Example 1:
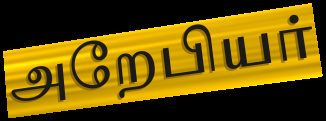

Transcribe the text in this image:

அறேபியர்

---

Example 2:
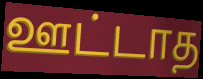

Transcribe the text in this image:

ஊட்டாத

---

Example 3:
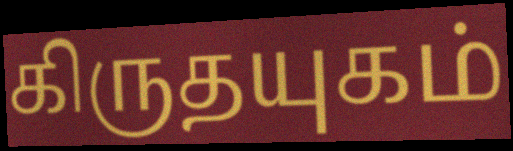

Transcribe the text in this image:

கிருதயுகம்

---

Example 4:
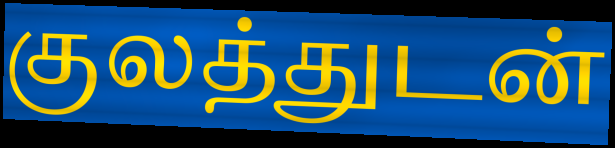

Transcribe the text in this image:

குலத்துடன்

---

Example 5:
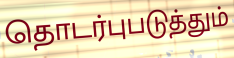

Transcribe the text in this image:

தொடர்புபடுத்தும்